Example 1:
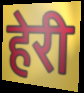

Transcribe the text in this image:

हेरी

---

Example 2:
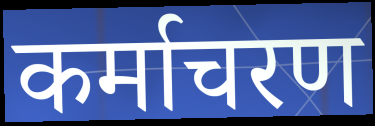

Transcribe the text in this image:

कर्माचरण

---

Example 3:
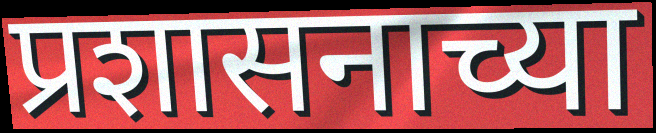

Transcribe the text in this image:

प्रशासनाच्या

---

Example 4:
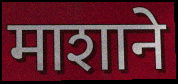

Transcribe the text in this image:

माशाने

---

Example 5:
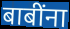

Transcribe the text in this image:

बाबींना